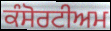
ਕੰਸੋਰਟੀਅਮ